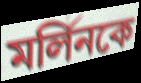
মর্লিনকে